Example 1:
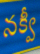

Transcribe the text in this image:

నక్వీ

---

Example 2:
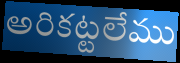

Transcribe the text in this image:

అరికట్టలేము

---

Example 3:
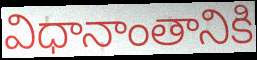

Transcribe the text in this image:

విధానాంతానికి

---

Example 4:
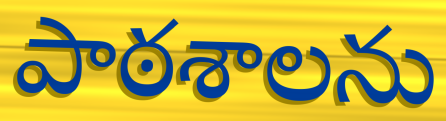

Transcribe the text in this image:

పాఠశాలను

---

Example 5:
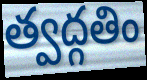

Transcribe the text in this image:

త్వద్గతిం